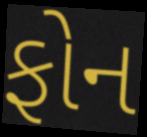
ફોન